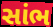
સાંભ